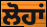
ਲੋਹਾਂ